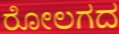
ರೋಲಗದ